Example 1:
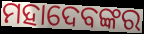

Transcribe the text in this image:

ମହାଦେବଙ୍କର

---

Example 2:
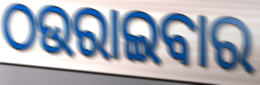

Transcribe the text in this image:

ଠଉରାଇବାର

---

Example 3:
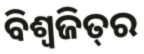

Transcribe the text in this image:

ବିଶ୍ୱଜିତ୍‌ର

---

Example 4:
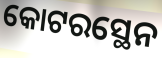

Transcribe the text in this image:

କୋଟରସ୍ଥେନ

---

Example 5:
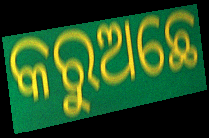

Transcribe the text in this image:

କରୁଅଛେ